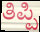
ತಿಪ್ಪಿ